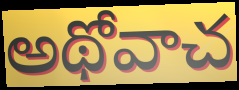
అథోవాచ